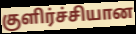
குளிர்ச்சியான